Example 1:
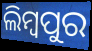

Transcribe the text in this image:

ଲିମ୍ବପୁର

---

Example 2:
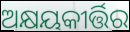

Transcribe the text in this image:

ଅକ୍ଷୟକୀର୍ତ୍ତିର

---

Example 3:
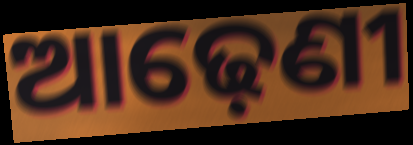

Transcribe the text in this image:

ଆଢ଼େଣୀ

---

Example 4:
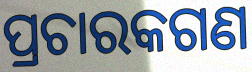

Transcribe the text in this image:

ପ୍ରଚାରକଗଣ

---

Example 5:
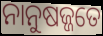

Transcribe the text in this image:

ନାନୁଷଜ୍ଜତେ